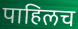
पाहिलच